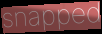
snapped